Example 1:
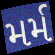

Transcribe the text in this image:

મર્મ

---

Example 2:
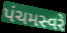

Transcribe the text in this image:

પંચમસ્વરે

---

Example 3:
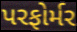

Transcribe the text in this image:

પરફોર્મર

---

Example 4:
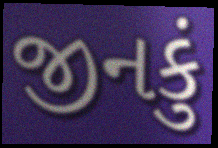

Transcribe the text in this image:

જીનકું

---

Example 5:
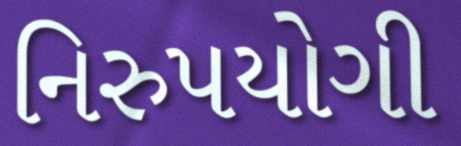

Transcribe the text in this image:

નિરુપયોગી